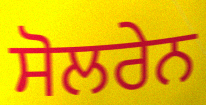
ਸੋਲਰੇਨ